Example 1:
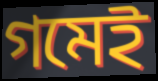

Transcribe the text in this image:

গমেই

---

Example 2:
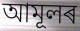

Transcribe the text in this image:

আমূলৰ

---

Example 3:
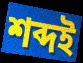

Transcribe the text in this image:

শব্দই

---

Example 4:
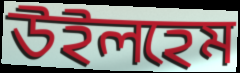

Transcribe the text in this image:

উইলহেম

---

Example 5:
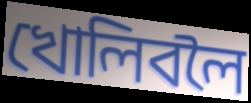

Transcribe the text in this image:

খোলিবলৈ